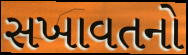
સખાવતનો